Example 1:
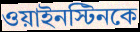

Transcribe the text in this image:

ওয়াইনস্টিনকে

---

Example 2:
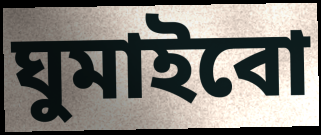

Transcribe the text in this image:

ঘুমাইবো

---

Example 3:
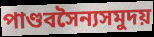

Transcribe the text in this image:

পাণ্ডবসৈন্যসমুদয়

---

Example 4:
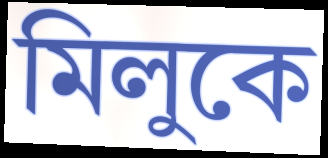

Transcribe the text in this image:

মিলুকে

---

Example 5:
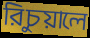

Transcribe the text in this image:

রিচুয়ালে